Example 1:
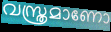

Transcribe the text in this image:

വസ്ത്രമാണോ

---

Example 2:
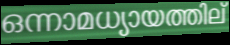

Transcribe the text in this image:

ഒന്നാമധ്യായത്തില്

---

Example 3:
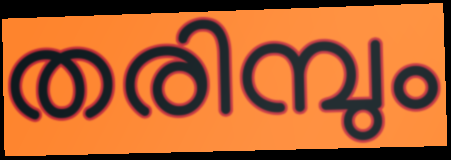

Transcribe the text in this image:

തരിമ്പും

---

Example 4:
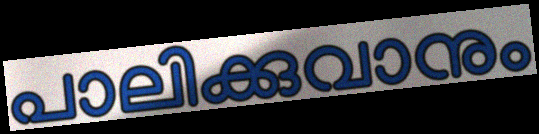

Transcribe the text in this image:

പാലിക്കുവാനും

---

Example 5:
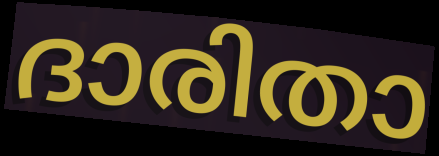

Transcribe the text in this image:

ദാരിതാ